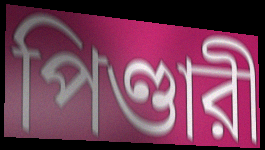
পিণ্ডারী